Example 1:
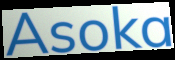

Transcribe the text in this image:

Asoka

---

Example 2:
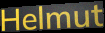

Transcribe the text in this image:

Helmut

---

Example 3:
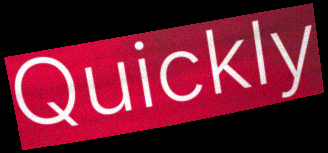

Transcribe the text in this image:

Quickly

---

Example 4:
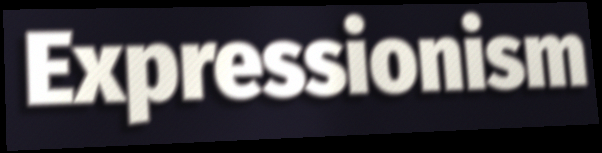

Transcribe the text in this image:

Expressionism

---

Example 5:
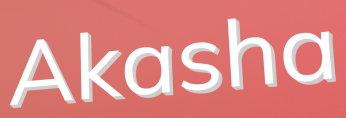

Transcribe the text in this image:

Akasha